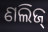
ଣଲିଜ୍